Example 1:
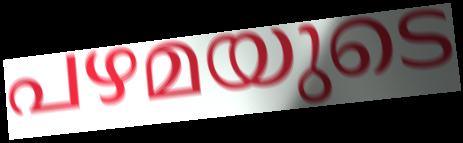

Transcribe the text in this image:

പഴമയുടെ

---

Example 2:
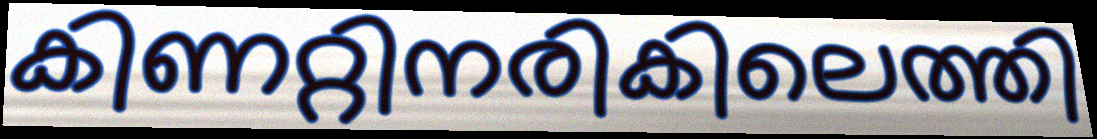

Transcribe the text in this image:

കിണറ്റിനരികിലെത്തി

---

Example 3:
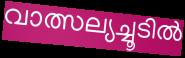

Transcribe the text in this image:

വാത്സല്യച്ചൂടിൽ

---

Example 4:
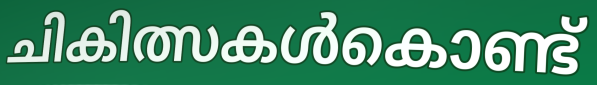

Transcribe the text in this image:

ചികിത്സകൾകൊണ്ട്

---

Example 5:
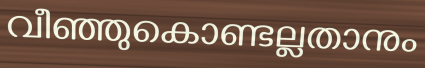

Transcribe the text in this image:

വീഞ്ഞുകൊണ്ടല്ലതാനും